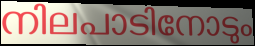
നിലപാടിനോടും